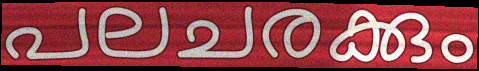
പലചരക്കും